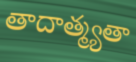
తాదాత్మ్యతా